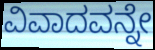
ವಿವಾದವನ್ನೇ